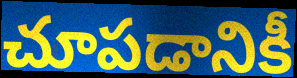
చూపడానికీ